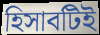
হিসাবটিই